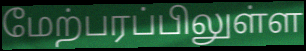
மேற்பரப்பிலுள்ள